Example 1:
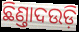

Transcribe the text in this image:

ଛିଣ୍ତାଦଉଡ଼ି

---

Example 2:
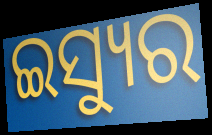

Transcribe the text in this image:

ଇସ୍ୟୁର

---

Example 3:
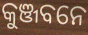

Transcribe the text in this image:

କୁଞ୍ଜବନେ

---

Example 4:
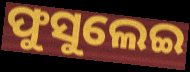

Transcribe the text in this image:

ଫୁସୁଲେଇ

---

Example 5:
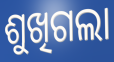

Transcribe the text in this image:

ଶୁଖିଗଲା